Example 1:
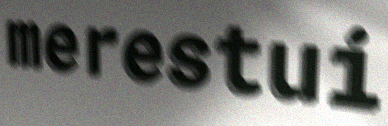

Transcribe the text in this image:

merestui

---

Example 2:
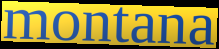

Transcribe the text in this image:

montana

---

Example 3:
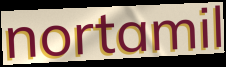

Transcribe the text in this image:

nortamil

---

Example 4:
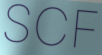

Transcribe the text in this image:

SCF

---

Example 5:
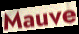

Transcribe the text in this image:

Mauve